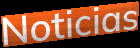
Noticias